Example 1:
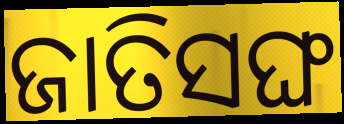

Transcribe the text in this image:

ଜାତିସଙ୍ଘ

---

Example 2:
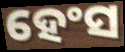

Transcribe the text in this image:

ହେଂସ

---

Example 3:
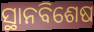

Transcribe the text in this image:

ସ୍ଥାନବିଶେଷ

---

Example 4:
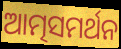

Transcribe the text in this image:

ଆତ୍ମସମର୍ଥନ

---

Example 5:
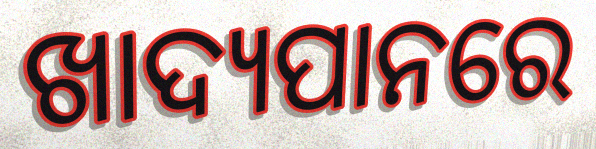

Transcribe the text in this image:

ଖାଦ୍ୟପାନରେ